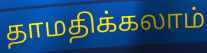
தாமதிக்கலாம்